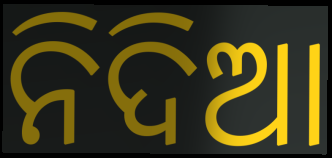
ନିଦିଆ